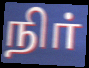
நிர்